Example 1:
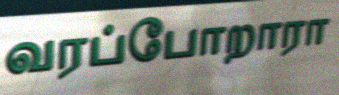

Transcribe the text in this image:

வரப்போறாரா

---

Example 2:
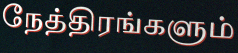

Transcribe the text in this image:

நேத்திரங்களும்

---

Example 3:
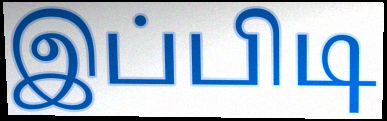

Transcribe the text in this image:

இப்பிடி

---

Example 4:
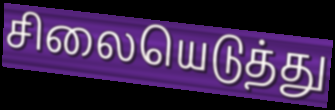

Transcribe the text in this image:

சிலையெடுத்து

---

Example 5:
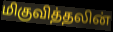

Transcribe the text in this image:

மிகுவித்தலின்